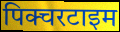
पिक्चरटाइम